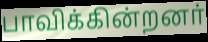
பாவிக்கின்றனர்